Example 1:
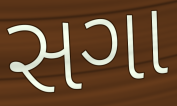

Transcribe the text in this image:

સગા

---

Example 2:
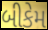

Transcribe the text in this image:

બીકેમ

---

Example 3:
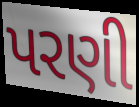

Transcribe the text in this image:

પરણી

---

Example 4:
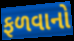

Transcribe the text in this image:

ફળવાનો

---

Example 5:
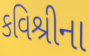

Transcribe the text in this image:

કવિશ્રીના